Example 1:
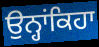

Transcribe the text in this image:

ਉਨ੍ਹਾਂਕਿਹਾ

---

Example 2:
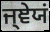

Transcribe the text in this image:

ਜ੍ਞੇਯਂ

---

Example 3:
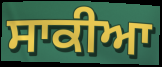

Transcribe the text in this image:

ਸਾਕੀਆ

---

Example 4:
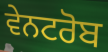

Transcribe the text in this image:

ਵੇਨਟਰੋਬ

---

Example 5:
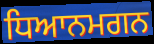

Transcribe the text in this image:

ਧਿਆਨਮਗਨ